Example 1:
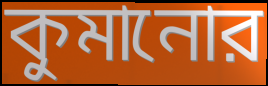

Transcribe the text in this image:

কুমানোর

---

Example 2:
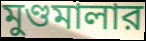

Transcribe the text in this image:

মুণ্ডমালার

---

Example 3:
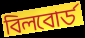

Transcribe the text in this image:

বিলবোর্ড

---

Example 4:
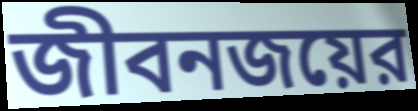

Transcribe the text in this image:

জীবনজয়ের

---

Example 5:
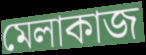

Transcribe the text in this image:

মেলাকাজ